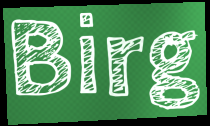
Birg